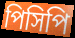
পিসিপি